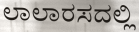
ಲಾಲಾರಸದಲ್ಲಿ